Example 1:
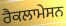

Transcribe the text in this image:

ਰੈਕਲਾਮੇਸਨ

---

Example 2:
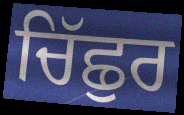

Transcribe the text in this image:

ਚਿੱਛੁਰ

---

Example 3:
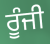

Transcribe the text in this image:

ਰੂੰਜੀ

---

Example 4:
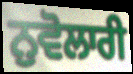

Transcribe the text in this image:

ਨੁਵੋਲਾਰੀ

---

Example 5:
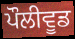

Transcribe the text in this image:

ਪੌਲੀਵੂਡ